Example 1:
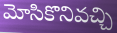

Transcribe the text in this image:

మోసికొనివచ్చి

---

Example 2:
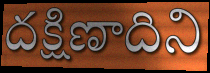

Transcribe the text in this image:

దక్షిణాదిని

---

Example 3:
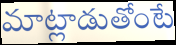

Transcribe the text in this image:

మాట్లాడుతోంటే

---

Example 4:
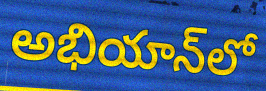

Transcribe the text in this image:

అభియాన్‌లో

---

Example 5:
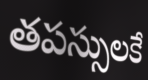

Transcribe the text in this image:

తపస్సులకే